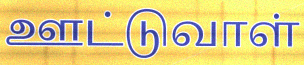
ஊட்டுவாள்